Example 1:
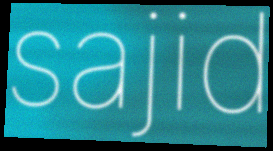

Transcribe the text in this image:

sajid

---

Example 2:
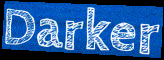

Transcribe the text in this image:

Darker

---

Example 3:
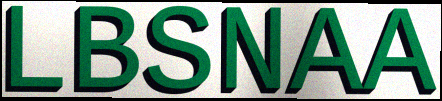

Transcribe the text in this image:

LBSNAA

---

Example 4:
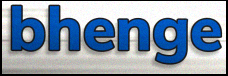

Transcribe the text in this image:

bhenge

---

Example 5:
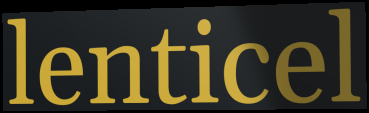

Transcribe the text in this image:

lenticel